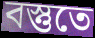
বস্তুতে